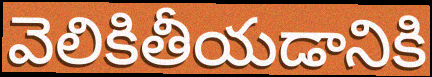
వెలికితీయడానికి